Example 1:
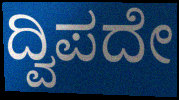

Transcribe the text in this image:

ದ್ವಿಪದೇ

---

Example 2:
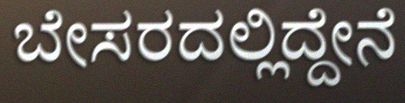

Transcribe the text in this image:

ಬೇಸರದಲ್ಲಿದ್ದೇನೆ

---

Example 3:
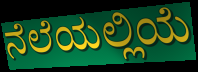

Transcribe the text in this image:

ನೆಲೆಯಲ್ಲಿಯೆ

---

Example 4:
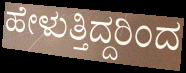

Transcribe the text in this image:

ಹೇಳುತ್ತಿದ್ದರಿಂದ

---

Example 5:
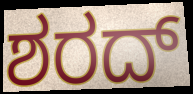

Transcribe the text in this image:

ಶರದ್